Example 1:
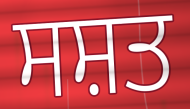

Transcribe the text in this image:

ਸਸ਼ਤ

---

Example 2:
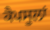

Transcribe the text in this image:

ਕੈਪਸੂਲਾਂ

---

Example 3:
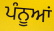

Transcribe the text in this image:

ਪੰਨੂਆਂ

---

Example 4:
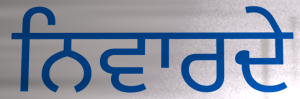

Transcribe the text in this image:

ਨਿਵਾਰਦੇ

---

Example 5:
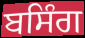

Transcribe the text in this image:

ਬਸਿੰਗ